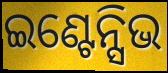
ଇଣ୍ଟେନ୍ସିଭ